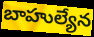
బాహుల్యేన